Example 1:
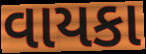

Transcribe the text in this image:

વાયકા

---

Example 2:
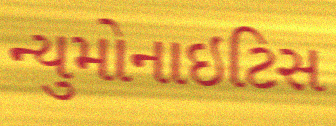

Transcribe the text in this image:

ન્યુમોનાઇટિસ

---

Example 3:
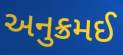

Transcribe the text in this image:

અનુક્રમઈ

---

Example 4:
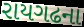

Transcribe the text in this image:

રાયગઢના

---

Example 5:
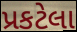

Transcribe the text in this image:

પ્રકટેલા